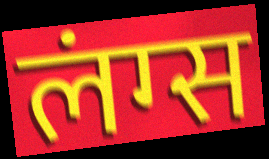
लंग्स